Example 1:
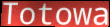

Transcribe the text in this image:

Totowa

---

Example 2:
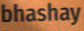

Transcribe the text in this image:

bhashay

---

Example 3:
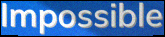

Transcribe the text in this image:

Impossible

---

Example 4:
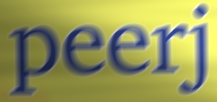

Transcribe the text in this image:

peerj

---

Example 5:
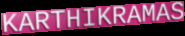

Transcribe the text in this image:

KARTHIKRAMAS